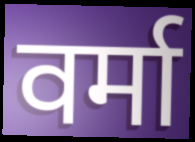
वर्मा